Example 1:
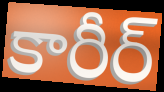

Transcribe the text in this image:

కారీర్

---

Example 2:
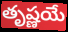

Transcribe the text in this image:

తృష్ణయే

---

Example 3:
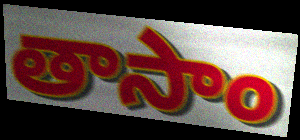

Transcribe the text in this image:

తాసాం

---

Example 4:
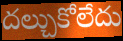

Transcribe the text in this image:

దల్చుకోలేదు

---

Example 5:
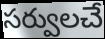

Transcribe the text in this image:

సర్వులచే